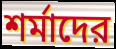
শর্মাদের